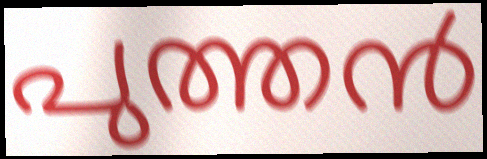
പുത്തൻ